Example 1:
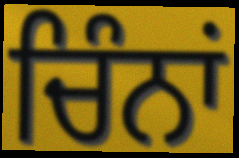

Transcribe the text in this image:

ਚਿੰਨਾਂ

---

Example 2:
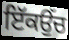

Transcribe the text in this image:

ਇੱਕਉੱਚ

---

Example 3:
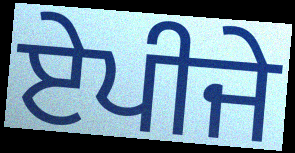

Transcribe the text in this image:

ਏਪੀਜੇ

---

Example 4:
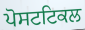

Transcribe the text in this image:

ਪੋਸਟਟਿਕਲ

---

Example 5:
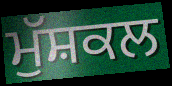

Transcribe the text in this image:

ਮੁੱਸ਼ਕਲ